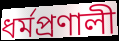
ধর্মপ্রণালী